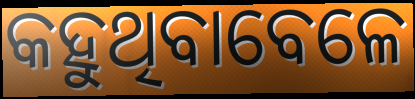
କହୁଥିବାବେଳେ